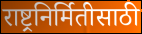
राष्ट्रनिर्मितीसाठी